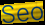
Seo